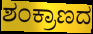
ಶಂಕ್ರಾಣದ